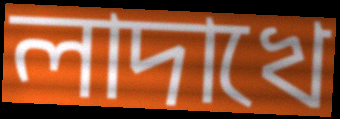
লাদাখে